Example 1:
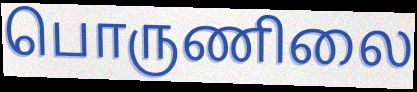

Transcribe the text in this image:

பொருணிலை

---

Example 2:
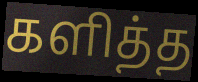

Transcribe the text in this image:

களித்த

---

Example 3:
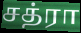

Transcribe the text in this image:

சத்ரா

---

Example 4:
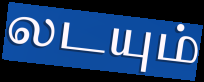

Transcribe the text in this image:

லடயும்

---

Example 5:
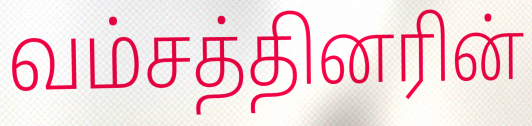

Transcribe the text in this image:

வம்சத்தினரின்